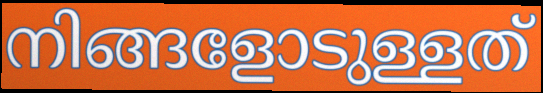
നിങ്ങളോടുള്ളത്